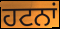
ਹਟਨਾਂ